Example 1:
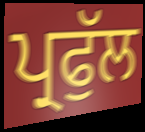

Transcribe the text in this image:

ਪ੍ਰਫੁੱਲ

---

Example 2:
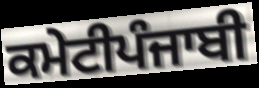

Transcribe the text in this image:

ਕਮੇਟੀਪੰਜਾਬੀ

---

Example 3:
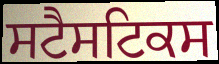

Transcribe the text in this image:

ਸਟੈਸਟਿਕਸ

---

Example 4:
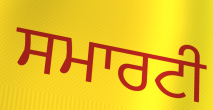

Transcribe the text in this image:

ਸਮਾਰਟੀ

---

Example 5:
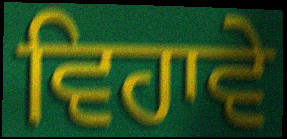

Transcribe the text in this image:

ਵਿਹਾਵੇ